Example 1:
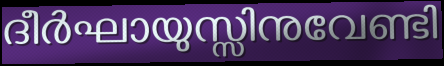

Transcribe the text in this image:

ദീർഘായുസ്സിനുവേണ്ടി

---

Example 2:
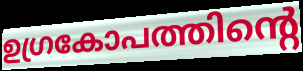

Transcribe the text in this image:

ഉഗ്രകോപത്തിന്റെ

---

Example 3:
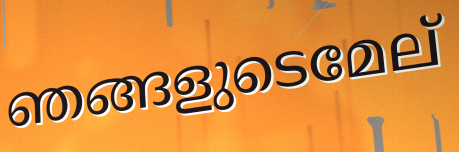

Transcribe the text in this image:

ഞങ്ങളുടെമേല്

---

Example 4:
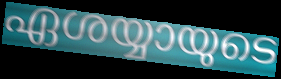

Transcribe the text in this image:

ഏശയ്യായുടെ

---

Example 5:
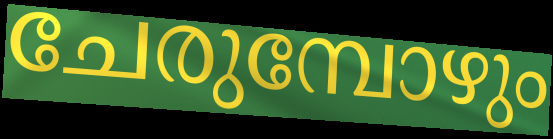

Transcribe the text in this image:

ചേരുമ്പോഴും